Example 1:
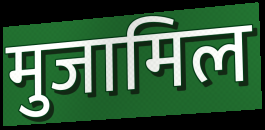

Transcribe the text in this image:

मुजामिल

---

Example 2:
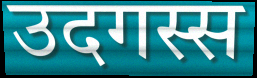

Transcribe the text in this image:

उदगस्स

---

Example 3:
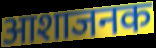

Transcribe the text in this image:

आशाजनक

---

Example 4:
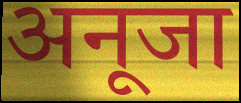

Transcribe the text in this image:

अनूजा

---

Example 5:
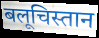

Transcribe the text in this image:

बलूचिस्‍तान